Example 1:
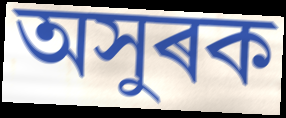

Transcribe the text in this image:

অসুৰক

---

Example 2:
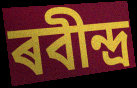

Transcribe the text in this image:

ৰবীন্দ্ৰ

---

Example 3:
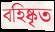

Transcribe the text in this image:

বহিষ্কৃত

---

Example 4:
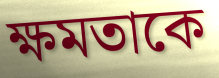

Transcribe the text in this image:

ক্ষমতাকে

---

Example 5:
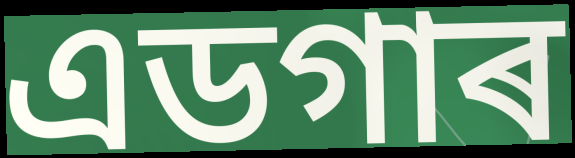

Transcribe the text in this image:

এডগাৰ